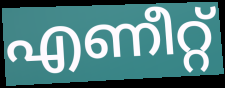
എണീറ്റ്